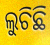
ଲୁଚିଛି